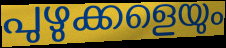
പുഴുക്കളെയും